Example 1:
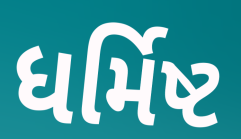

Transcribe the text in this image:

ધર્મિષ્ટ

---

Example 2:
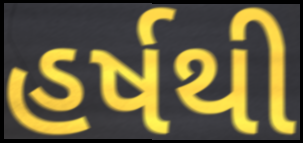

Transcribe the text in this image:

હર્ષથી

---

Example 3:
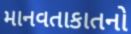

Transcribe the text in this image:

માનવતાકાતનો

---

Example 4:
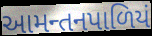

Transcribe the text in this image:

આમન્તનપાળિયં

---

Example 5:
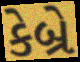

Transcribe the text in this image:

કેબ્રે